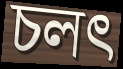
চলৎ